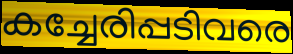
കച്ചേരിപ്പടിവരെ